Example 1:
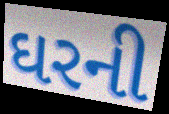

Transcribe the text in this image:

ઘરની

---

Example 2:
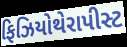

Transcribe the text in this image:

ફિઝિયોથેરાપીસ્ટ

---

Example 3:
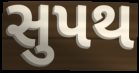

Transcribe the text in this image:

સુપથ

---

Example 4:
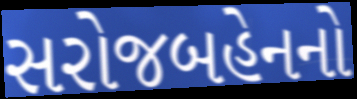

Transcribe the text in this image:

સરોજબહેનનો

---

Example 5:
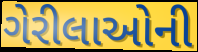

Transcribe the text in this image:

ગેરીલાઓની